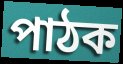
পাঠক